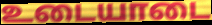
உடையாடை